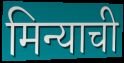
मिन्याची